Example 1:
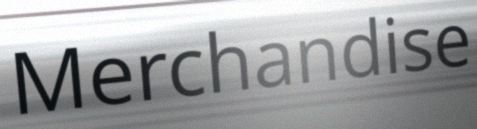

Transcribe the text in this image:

Merchandise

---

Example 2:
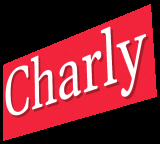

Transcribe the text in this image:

Charly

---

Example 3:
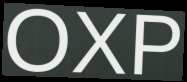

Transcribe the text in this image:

OXP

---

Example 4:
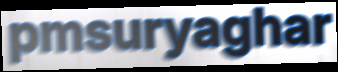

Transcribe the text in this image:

pmsuryaghar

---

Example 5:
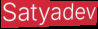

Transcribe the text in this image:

Satyadev